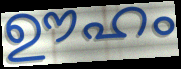
ഊഹം